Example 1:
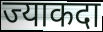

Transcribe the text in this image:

ज्याकदा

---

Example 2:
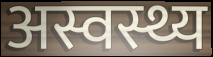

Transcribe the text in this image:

अस्वस्थ्य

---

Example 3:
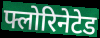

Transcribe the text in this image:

फ्लोरिनेटेड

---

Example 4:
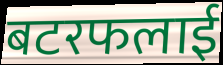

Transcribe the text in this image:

बटरफलाई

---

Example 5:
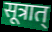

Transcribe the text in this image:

सूत्रात्